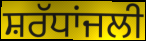
ਸ਼ਰੱਧਾਂਜਲੀ